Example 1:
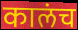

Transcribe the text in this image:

कालंच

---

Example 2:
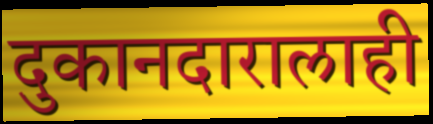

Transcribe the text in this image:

दुकानदारालाही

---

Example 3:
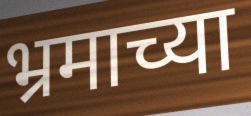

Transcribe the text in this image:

भ्रमाच्या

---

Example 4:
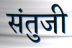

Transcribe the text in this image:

संतुजी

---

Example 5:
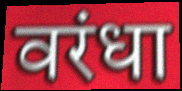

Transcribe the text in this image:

वरंधा